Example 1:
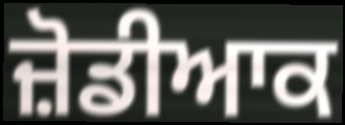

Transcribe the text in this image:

ਜ਼ੋਡੀਆਕ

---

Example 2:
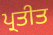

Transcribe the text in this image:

ਪ੍ਰਤੀਤ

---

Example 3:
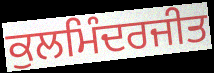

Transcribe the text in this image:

ਕੁਲਮਿੰਦਰਜੀਤ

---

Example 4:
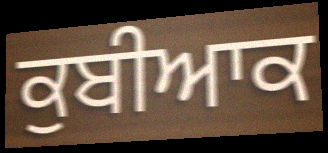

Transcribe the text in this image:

ਕੁਬੀਆਕ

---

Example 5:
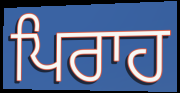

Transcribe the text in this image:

ਪਿਰਾਹ